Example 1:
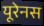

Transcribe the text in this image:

यूरेनस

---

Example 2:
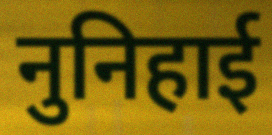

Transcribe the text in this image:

नुनिहाई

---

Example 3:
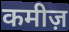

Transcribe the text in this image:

कमीज़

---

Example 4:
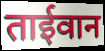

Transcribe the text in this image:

ताईवान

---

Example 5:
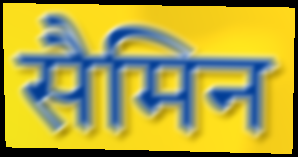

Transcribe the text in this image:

सैमिन